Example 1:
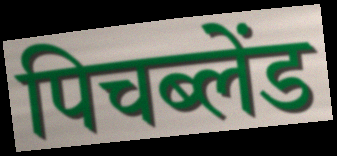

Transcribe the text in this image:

पिचब्लेंड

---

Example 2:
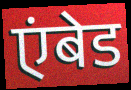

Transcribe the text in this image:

एंबेड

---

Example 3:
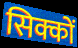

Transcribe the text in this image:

सिक्कों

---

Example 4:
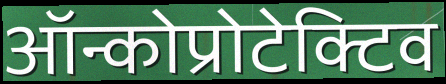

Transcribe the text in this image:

ऑन्कोप्रोटेक्टिव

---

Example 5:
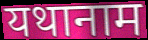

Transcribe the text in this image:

यथानाम